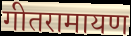
गीतरामायण